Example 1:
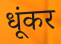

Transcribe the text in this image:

धूंकर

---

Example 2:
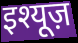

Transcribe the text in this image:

इश्यूज़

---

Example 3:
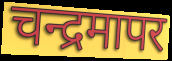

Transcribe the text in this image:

चन्द्रमापर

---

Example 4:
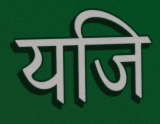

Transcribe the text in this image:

यजि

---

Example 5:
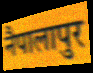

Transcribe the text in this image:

नैपालापुर